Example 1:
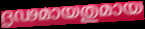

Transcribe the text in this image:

ദൃഢമായതുമായ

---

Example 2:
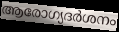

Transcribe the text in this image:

ആരോഗ്യദർശനം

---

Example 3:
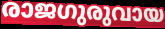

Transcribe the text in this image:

രാജഗുരുവായ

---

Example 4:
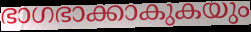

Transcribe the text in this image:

ഭാഗഭാക്കാകുകയും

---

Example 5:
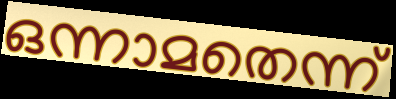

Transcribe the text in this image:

ഒന്നാമതെന്ന്